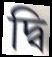
দ্বি